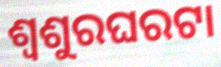
ଶ୍ୱଶୁରଘରଟା